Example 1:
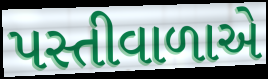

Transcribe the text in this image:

પસ્તીવાળાએ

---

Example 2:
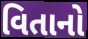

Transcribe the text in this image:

વિતાનો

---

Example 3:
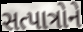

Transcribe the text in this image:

સત્પાત્રોને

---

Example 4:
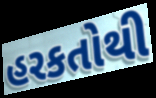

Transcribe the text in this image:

હરકતોથી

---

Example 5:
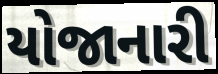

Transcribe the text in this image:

યોજાનારી